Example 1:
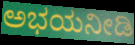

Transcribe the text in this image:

ಅಭಯನೀಡಿ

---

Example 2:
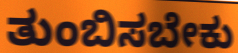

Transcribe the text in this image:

ತುಂಬಿಸಬೇಕು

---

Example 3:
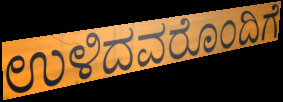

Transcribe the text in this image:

ಉಳಿದವರೊಂದಿಗೆ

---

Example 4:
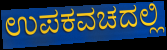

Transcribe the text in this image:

ಉಪಕವಚದಲ್ಲಿ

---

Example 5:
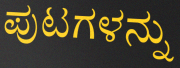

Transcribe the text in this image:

ಪುಟಗಳನ್ನು